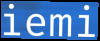
iemi